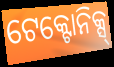
ଟେକ୍ଟୋନିକ୍ସ୍